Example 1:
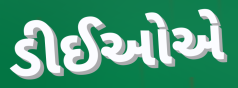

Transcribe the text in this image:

ડીઈઓએ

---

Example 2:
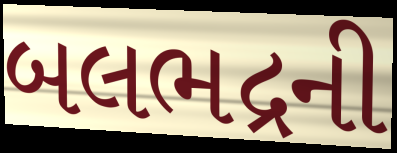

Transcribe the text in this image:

બલભદ્રની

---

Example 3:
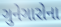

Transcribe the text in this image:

ગુનેગારોના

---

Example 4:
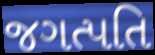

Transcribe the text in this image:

જગત્પતિ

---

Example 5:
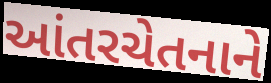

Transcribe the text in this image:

આંતરચેતનાને